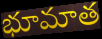
భూమాత